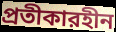
প্রতীকারহীন